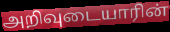
அறிவுடையாரின்